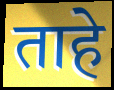
ताहे